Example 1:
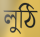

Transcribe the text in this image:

লুঠি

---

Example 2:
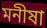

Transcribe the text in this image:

মনীষা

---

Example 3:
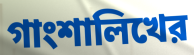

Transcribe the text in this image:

গাংশালিখের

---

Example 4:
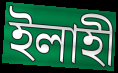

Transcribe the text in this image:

ইলাহী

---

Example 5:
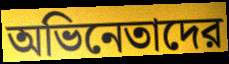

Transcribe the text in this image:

অভিনেতাদের